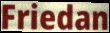
Friedan